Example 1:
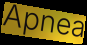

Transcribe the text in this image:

Apnea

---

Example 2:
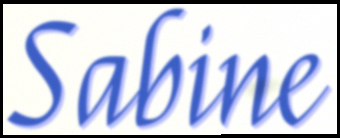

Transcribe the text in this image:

Sabine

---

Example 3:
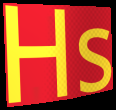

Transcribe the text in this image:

Hs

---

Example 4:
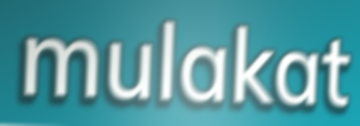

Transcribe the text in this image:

mulakat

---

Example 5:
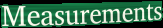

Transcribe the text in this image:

Measurements